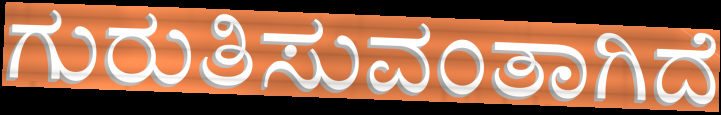
ಗುರುತಿಸುವಂತಾಗಿದೆ